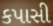
કપાસી